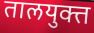
तालयुक्त